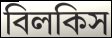
বিলকিস